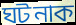
ঘটনাক